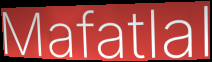
Mafatlal